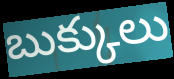
బుక్కులు